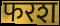
फरश